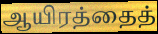
ஆயிரத்தைத்